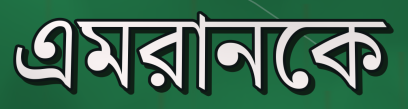
এমরানকে